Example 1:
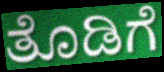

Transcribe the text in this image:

ತೊಡಿಗೆ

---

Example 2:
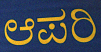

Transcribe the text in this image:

ಆಪರಿ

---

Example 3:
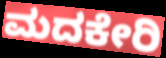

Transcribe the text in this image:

ಮದಕೇರಿ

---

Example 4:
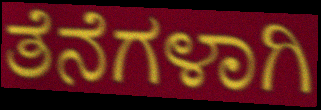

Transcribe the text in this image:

ತೆನೆಗಳಾಗಿ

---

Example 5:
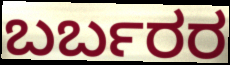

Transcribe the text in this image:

ಬರ್ಬರರ